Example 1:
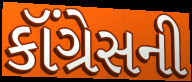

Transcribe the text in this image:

કૉંગ્રેસની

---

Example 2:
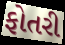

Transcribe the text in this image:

ફોતરી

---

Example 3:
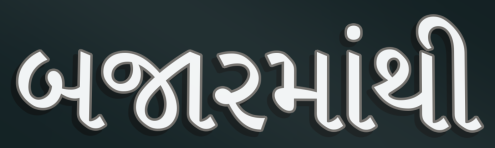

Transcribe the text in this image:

બજારમાંથી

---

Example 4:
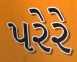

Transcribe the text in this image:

પરેરે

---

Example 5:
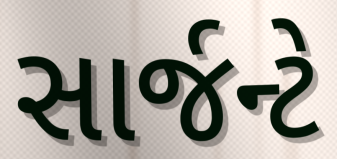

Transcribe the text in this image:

સાર્જન્ટે